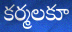
కర్మలకూ